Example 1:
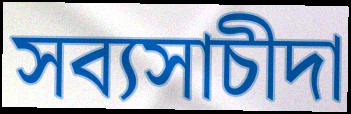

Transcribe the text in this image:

সব্যসাচীদা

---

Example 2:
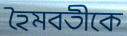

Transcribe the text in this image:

হৈমবতীকে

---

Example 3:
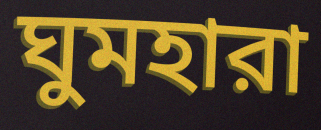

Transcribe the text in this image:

ঘুমহারা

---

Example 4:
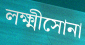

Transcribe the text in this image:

লক্ষ্মীসোনা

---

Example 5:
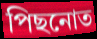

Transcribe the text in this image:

পিছনোত